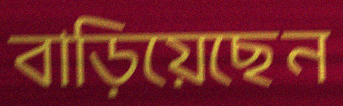
বাড়িয়েছেন